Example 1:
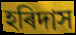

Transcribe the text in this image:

হৰিদাস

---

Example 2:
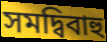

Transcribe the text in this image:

সমদ্বিবাহু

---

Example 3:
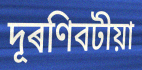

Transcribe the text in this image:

দূৰণিবটীয়া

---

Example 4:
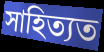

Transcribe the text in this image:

সাহিত্যত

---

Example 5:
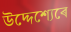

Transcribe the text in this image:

উদ্দেশ্যেৰে